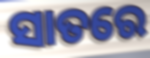
ସାତରେ